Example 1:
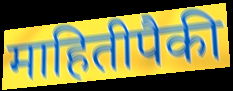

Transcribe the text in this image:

माहितीपैकी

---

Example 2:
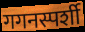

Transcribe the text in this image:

गगनस्पर्शी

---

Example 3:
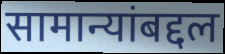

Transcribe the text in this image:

सामान्यांबद्दल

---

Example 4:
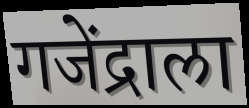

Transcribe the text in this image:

गजेंद्राला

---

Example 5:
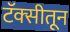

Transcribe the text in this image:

टॅक्‍सीतून